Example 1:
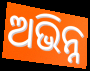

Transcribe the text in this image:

ଅଭିନ୍ନ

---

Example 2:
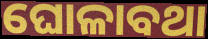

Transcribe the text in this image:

ଘୋଳାବଥା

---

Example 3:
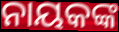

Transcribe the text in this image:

ନାୟକଙ୍କ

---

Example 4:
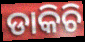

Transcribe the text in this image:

ଡାକିଚି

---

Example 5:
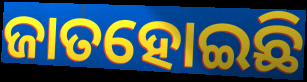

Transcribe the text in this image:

ଜାତହୋଇଛି